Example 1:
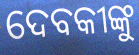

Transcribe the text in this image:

ଦେବକୀଙ୍କୁ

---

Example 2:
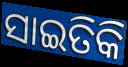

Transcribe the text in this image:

ସାଇତିକି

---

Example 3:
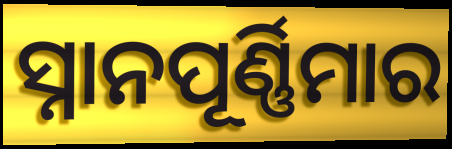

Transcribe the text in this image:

ସ୍ନାନପୂର୍ଣ୍ଣିମାର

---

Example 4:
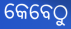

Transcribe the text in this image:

କେବେଠୁ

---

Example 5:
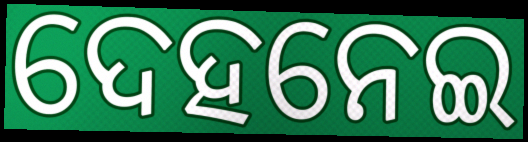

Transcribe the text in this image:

ଦେହନେଇ